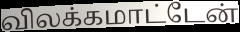
விலக்கமாட்டேன்